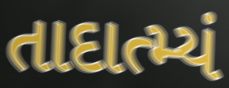
તાદાત્મ્યં